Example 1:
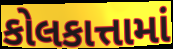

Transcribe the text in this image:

કોલકાત્તામાં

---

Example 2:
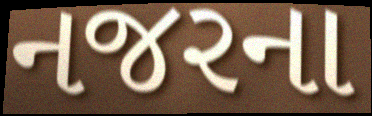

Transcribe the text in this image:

નજરના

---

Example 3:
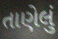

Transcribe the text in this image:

તાણેલું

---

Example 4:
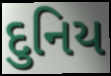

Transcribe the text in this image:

દુનિય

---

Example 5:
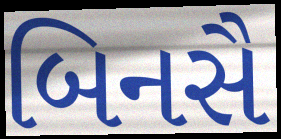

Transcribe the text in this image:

બિનસૈ